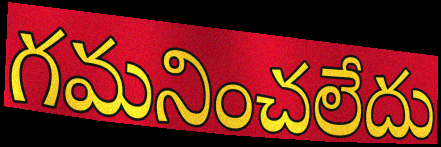
గమనించలేదు